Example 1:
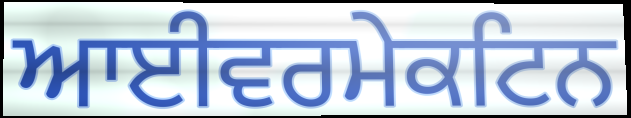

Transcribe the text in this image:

ਆਈਵਰਮੇਕਟਿਨ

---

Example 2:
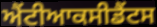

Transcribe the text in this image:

ਐਂਟੀਆਕਸੀਡੈਂਟਸ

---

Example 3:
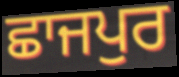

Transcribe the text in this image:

ਛਾਜਪੁਰ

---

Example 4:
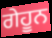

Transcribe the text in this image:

ਗੇਹੂਨ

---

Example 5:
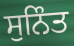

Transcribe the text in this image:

ਸੁਨਿੰਤ